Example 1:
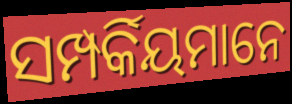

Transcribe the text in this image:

ସମ୍ପର୍କିୟମାନେ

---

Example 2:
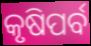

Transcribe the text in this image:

କୃଷିପର୍ବ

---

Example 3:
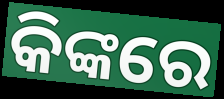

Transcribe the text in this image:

କିଙ୍କରେ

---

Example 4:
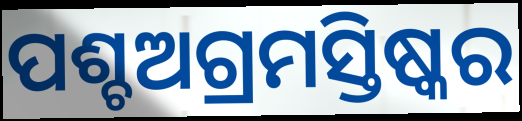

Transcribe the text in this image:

ପଶ୍ଚଅଗ୍ରମସ୍ତିଷ୍କର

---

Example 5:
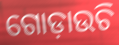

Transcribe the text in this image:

ଗୋଡ଼ାଉଚି